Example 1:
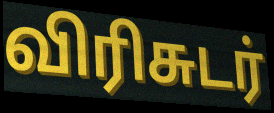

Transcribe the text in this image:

விரிசுடர்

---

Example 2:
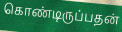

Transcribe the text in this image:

கொண்டிருப்பதன்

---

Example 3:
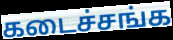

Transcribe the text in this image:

கடைச்சங்க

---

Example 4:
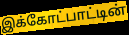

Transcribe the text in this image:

இக்கோட்பாட்டின்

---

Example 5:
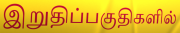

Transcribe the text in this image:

இறுதிப்பகுதிகளில்